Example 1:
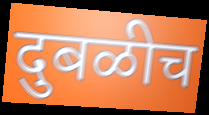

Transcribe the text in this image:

दुबळीच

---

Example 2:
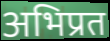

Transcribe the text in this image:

अभिप्रत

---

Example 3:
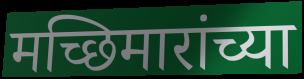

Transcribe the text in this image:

मच्छिमारांच्या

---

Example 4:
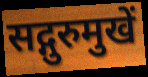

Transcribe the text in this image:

सद्गुरुमुखें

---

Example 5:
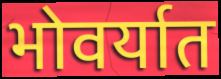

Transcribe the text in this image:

भोवर्यात